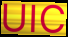
UIC